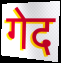
गेद